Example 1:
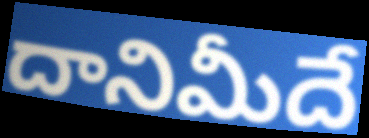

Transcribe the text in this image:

దానిమీదే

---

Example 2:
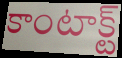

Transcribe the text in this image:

కాంటాక్ట్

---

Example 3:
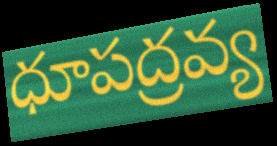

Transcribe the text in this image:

ధూపద్రవ్య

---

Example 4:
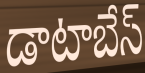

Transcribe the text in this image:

డాటాబేస్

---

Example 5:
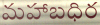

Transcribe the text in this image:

మహాబధిర